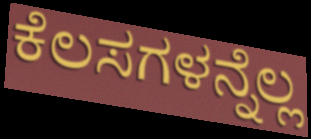
ಕೆಲಸಗಳನ್ನೆಲ್ಲ